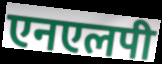
एनएलपी